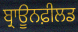
ਬ੍ਰਾਊਨਫ਼ੀਲਡ